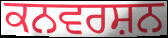
ਕਨਵਰਸ਼ਨ